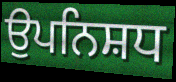
ਉਪਨਿਸ਼ਧ